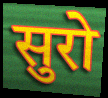
सुरो